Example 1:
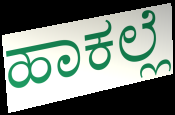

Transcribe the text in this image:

ಹಾಕಲ್ಲೆ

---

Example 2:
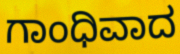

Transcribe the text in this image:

ಗಾಂಧಿವಾದ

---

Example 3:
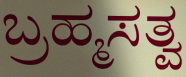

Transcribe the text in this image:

ಬ್ರಹ್ಮಸತ್ವ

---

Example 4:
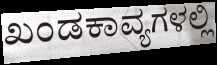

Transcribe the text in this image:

ಖಂಡಕಾವ್ಯಗಳಲ್ಲಿ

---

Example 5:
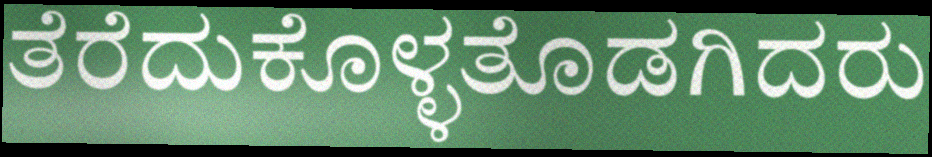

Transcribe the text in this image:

ತೆರೆದುಕೊಳ್ಳತೊಡಗಿದರು